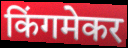
किंगमेकर